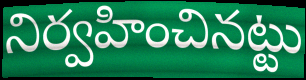
నిర్వహించినట్టు